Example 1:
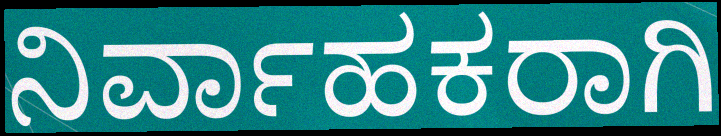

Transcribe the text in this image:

ನಿರ್ವಾಹಕರಾಗಿ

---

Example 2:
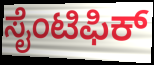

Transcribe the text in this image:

ಸೈಂಟಿಫಿಕ್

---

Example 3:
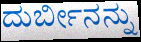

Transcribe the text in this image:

ದುರ್ಬೀನನ್ನು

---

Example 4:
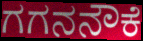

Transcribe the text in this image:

ಗಗನನೌಕೆ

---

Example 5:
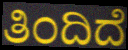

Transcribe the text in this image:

ತಿಂದಿದೆ